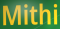
Mithi